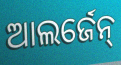
ଆଲର୍ଜେନ୍